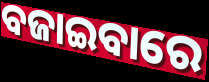
ବଜାଇବାରେ